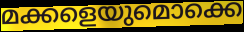
മക്കളെയുമൊക്കെ